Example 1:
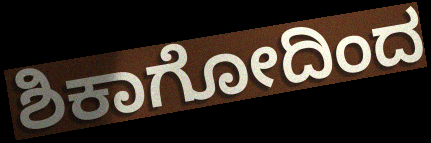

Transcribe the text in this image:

ಶಿಕಾಗೋದಿಂದ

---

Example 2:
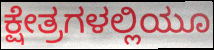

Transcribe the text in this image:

ಕ್ಷೇತ್ರಗಳಲ್ಲಿಯೂ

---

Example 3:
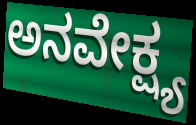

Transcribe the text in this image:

ಅನವೇಕ್ಷ್ಯ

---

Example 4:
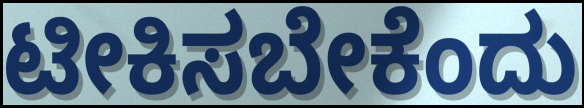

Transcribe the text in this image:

ಟೀಕಿಸಬೇಕೆಂದು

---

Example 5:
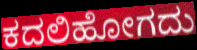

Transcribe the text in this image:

ಕದಲಿಹೋಗದು